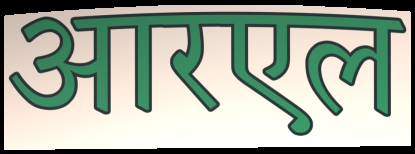
आरएल